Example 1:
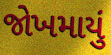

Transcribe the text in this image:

જોખમાયું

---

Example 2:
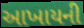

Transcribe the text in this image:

આખાયની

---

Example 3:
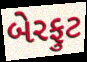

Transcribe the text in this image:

બેરફુટ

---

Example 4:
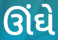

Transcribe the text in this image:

ઊંઘે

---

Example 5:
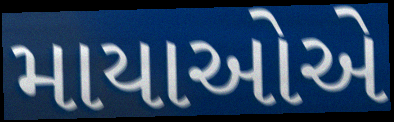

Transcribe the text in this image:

માયાઓએ